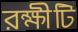
রক্ষীটি